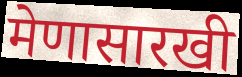
मेणासारखी